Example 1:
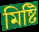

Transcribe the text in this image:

মিষ্টি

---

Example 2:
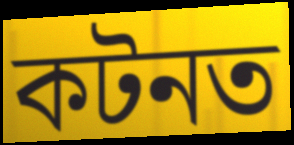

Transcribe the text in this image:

কটনত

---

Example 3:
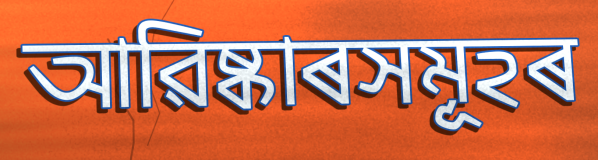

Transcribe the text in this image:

আৱিষ্কাৰসমূহৰ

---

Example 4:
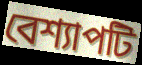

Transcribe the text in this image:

বেশ্যাপটি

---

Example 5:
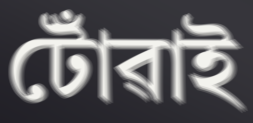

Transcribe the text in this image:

টোঁৱাই